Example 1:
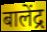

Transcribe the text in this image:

बालेंद्र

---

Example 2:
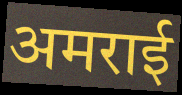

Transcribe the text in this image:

अमराई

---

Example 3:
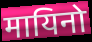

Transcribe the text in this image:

मायिनो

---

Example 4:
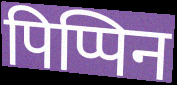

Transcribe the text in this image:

पिप्पिन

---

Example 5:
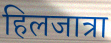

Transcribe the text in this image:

हिलजात्रा